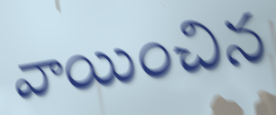
వాయించిన